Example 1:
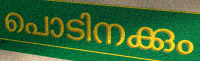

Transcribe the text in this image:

പൊടിനക്കും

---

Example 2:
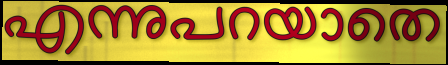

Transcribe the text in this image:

എന്നുപറയാതെ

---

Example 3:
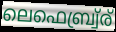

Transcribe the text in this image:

ലെഫെബ്ര്വ്ര്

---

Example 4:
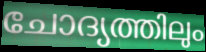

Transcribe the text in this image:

ചോദ്യത്തിലും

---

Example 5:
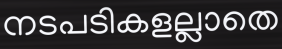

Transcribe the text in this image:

നടപടികളല്ലാതെ